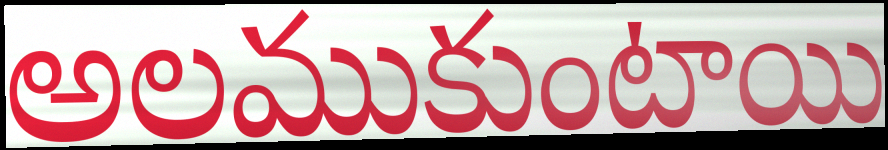
అలముకుంటాయి